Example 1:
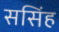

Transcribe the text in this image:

ससिंह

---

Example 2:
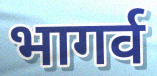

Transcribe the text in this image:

भागर्व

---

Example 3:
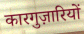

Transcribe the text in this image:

कारगुज़ारियों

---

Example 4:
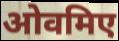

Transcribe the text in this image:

ओवमिए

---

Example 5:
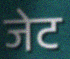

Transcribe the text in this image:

जेट